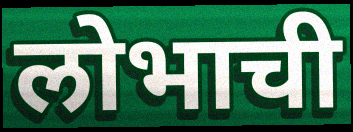
लोभाची